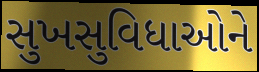
સુખસુવિધાઓને